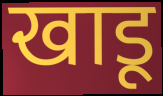
खाडू